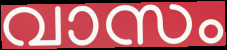
വാസം